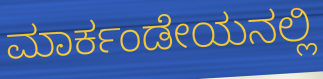
ಮಾರ್ಕಂಡೇಯನಲ್ಲಿ